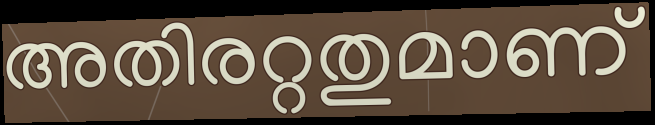
അതിരറ്റതുമാണ്